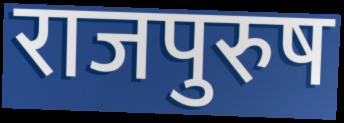
राजपुरुष